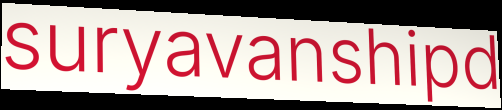
suryavanshipd